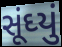
સૂંઘ્યું